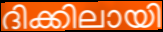
ദിക്കിലായി